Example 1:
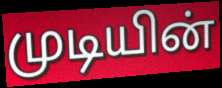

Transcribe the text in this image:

முடியின்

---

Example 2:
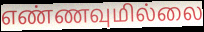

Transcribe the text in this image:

எண்ணவுமில்லை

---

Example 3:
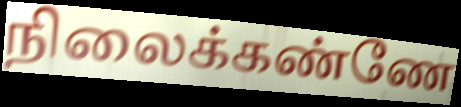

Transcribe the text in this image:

நிலைக்கண்ணே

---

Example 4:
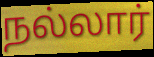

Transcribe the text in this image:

நல்லார்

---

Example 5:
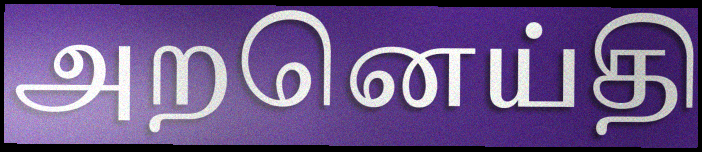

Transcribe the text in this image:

அறனெய்தி